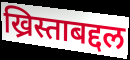
ख्रिस्ताबद्दल